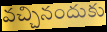
వచ్చినందుకు